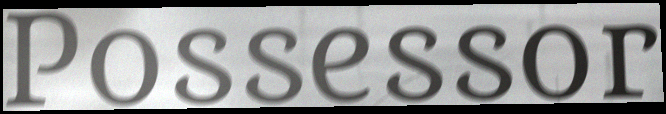
Possessor